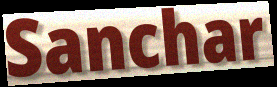
Sanchar